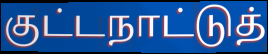
குட்டநாட்டுத்